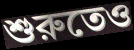
শুরুতেও